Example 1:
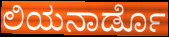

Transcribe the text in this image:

ಲಿಯನಾರ್ಡೊ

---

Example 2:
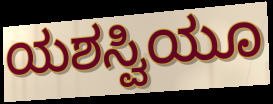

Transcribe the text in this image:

ಯಶಸ್ವಿಯೂ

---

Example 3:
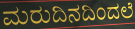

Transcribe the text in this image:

ಮರುದಿನದಿಂದಲೆ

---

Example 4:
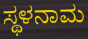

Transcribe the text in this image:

ಸ್ಥಳನಾಮ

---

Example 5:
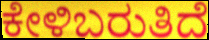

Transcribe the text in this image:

ಕೇಳಿಬರುತಿದೆ